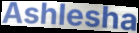
Ashlesha